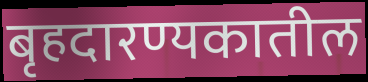
बृहदारण्यकातील